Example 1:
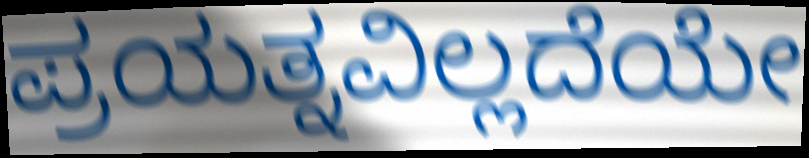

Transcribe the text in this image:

ಪ್ರಯತ್ನವಿಲ್ಲದೆಯೇ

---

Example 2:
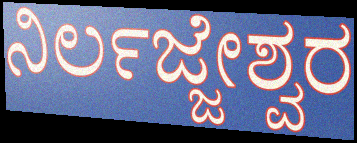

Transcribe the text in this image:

ನಿರ್ಲಜ್ಜೇಶ್ವರ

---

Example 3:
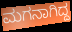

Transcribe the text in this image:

ಮಗನಾಗಿದ್ದ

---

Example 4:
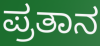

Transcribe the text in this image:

ಪ್ರತಾನ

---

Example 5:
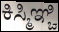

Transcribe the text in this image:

ಕಿಸ್ಮಿಞ್ಚಿ